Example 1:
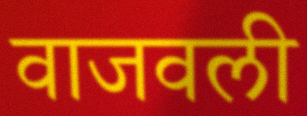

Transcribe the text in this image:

वाजवली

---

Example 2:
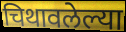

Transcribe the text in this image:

चिथावलेल्या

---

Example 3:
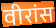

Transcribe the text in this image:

वीरांस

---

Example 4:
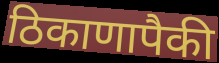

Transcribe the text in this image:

ठिकाणापैकी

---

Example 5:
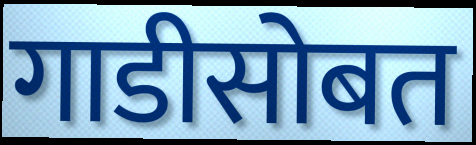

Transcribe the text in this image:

गाडीसोबत